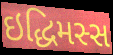
ઇદ્ધિમસ્સ